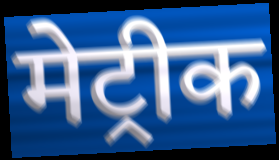
मेट्रीक